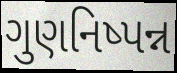
ગુણનિષ્પન્ન